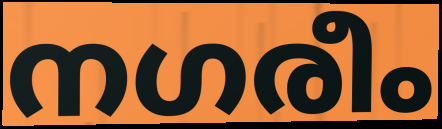
നഗരീം